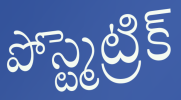
పోస్ట్మెట్రిక్